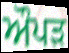
ਔਪੜ